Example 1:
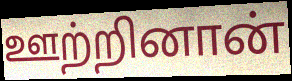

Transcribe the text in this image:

ஊற்றினான்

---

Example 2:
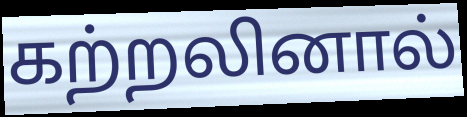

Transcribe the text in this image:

கற்றலினால்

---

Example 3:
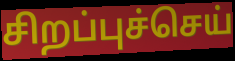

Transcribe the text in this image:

சிறப்புச்செய்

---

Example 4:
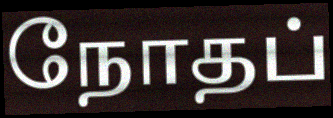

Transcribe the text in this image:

நோதப்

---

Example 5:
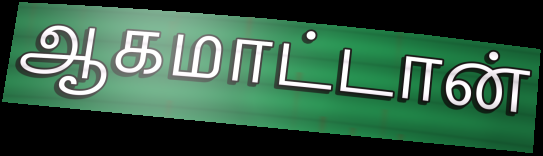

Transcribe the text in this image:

ஆகமாட்டான்